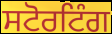
ਸਟੋਰਟਿੰਗ